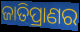
ଜାତିପ୍ରାଣର